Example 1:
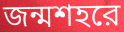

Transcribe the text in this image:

জন্মশহরে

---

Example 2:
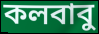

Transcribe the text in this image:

কলবাবু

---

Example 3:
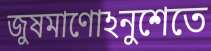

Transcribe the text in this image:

জুষমাণোঽনুশেতে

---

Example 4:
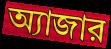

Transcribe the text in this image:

অ্যাজার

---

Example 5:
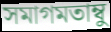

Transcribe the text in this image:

সমাগমতাম্বু